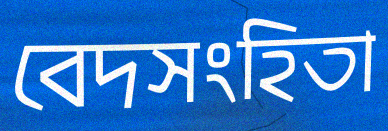
বেদসংহিতা